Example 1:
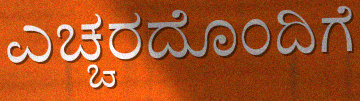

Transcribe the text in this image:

ಎಚ್ಚರದೊಂದಿಗೆ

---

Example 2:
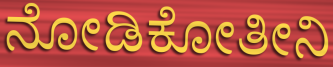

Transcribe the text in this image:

ನೋಡಿಕೋತೀನಿ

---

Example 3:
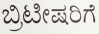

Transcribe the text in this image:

ಬ್ರಿಟೀಷರಿಗೆ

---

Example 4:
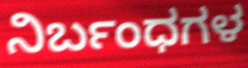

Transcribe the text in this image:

ನಿರ್ಬಂಧಗಳ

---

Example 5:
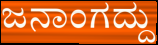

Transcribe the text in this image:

ಜನಾಂಗದ್ದು